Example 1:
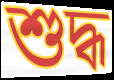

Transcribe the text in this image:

শুদ্ধ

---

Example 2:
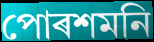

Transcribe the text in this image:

পোৰশমনি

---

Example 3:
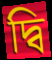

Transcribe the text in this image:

দ্বি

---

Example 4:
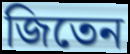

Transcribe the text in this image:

জিতেন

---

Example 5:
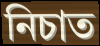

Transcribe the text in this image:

নিচাত